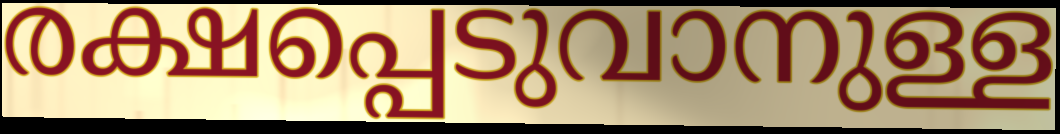
രക്ഷപ്പെടുവാനുള്ള